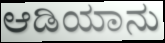
ಆಡಿಯಾನು